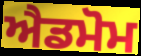
ਐਡਮੋਮ